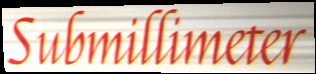
Submillimeter